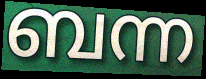
ബന്ന